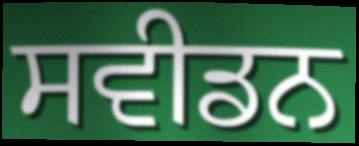
ਸਵੀਡਨ